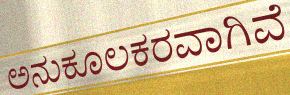
ಅನುಕೂಲಕರವಾಗಿವೆ